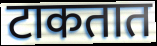
टाकतात